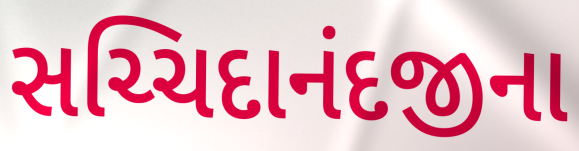
સચ્ચિદાનંદજીના